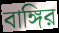
বাঙ্গির